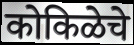
कोकिळेचे